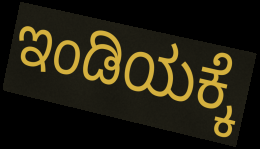
ಇಂಡಿಯಕ್ಕೆ